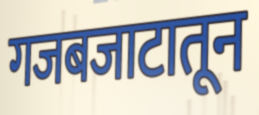
गजबजाटातून